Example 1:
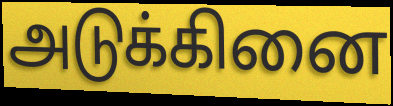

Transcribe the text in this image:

அடுக்கினை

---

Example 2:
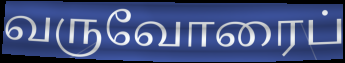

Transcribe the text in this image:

வருவோரைப்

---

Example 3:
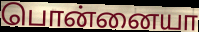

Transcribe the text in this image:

பொன்னையா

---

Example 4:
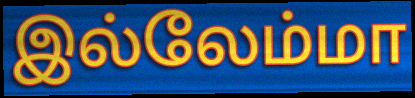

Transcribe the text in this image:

இல்லேம்மா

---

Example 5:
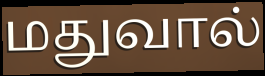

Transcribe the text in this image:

மதுவால்